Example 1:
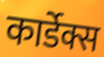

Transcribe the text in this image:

कार्डेक्स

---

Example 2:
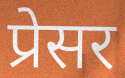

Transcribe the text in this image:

प्रेसर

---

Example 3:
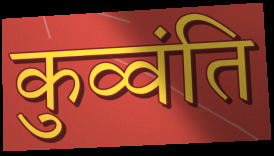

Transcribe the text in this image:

कुव्वंति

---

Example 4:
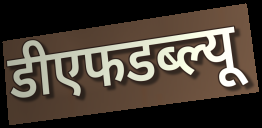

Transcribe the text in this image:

डीएफडब्ल्यू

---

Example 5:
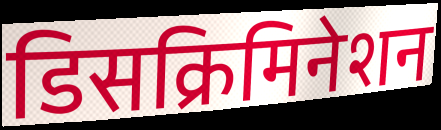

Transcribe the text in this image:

डिसक्रिमिनेशन